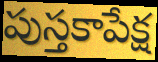
పుస్తకాపేక్ష